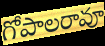
గోపాలరావూ